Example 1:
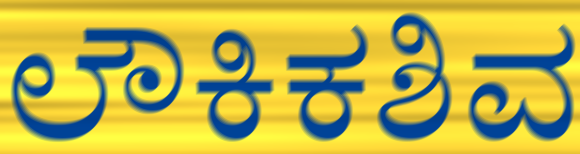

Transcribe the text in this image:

ಲೌಕಿಕಶಿವ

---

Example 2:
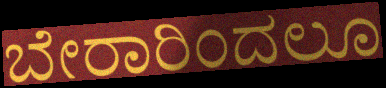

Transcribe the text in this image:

ಬೇರಾರಿಂದಲೂ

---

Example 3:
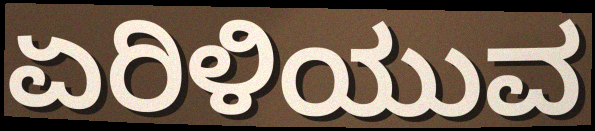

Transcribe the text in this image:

ಏರಿಳಿಯುವ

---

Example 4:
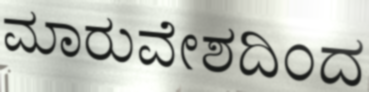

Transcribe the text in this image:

ಮಾರುವೇಶದಿಂದ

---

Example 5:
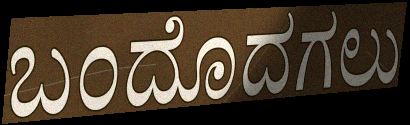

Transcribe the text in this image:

ಬಂದೊದಗಲು